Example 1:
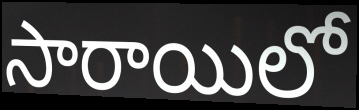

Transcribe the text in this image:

సారాయిలో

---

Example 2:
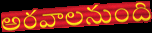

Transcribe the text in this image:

అరవాలనుంది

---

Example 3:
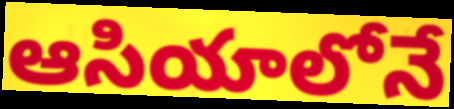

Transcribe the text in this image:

ఆసియాలోనే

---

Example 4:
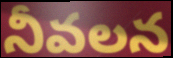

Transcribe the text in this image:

నీవలన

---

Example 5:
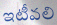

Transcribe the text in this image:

ఇటీవలి